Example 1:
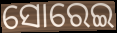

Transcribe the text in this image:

ସୋରେଇ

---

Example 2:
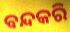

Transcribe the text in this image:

ବନ୍ଦକରି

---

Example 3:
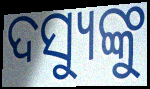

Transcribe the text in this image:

ଦସ୍ୟୁଙ୍କୁ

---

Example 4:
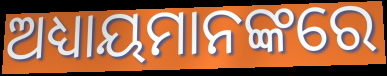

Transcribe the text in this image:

ଅଧ୍ୟାୟମାନଙ୍କରେ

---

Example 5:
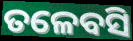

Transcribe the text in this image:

ତଳେବସି